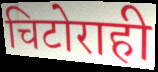
चिटोराही